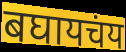
बघायचंय